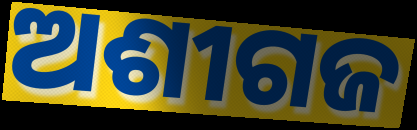
ଅଶୀଗଜ